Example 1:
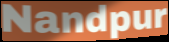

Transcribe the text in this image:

Nandpur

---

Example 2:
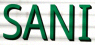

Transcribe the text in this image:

SANI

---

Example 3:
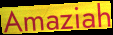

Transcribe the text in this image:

Amaziah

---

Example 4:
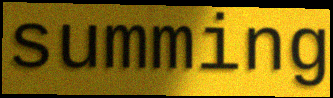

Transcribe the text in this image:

summing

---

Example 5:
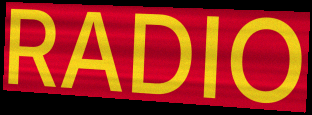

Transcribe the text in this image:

RADIO